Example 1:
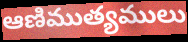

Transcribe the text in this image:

ఆణిముత్యములు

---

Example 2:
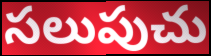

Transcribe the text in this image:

సలుపుచు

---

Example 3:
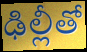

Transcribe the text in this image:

ఢిల్లీతో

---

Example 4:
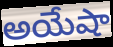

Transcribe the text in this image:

అయేషా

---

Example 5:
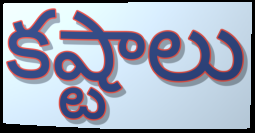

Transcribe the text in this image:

కష్టాలు